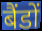
बैंडों